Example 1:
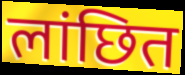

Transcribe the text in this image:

लांछित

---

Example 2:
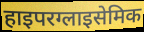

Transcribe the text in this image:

हाइपरग्लाइसेमिक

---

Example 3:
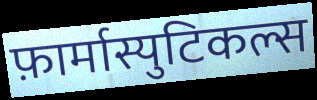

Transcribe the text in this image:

फ़ार्मास्युटिकल्स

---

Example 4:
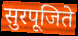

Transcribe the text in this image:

सुरपूजिते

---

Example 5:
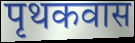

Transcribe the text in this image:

पृथकवास